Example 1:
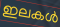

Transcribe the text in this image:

ഇലകൾ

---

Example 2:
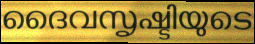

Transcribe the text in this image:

ദൈവസൃഷ്ടിയുടെ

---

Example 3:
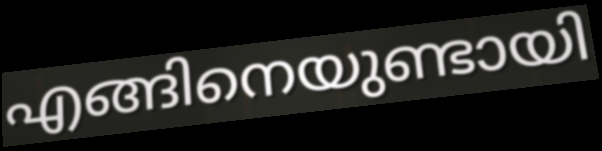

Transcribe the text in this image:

എങ്ങിനെയുണ്ടായി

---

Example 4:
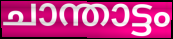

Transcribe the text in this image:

ചാന്താട്ടം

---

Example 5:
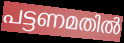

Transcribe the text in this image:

പട്ടണമതിൽ